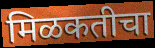
मिळकतीचा